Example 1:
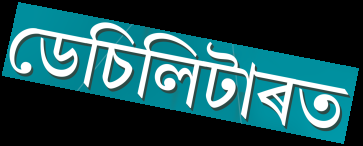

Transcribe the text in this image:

ডেচিলিটাৰত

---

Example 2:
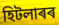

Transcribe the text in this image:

হিটলাৰৰ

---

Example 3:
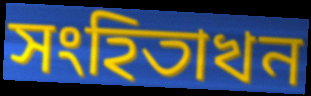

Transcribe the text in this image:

সংহিতাখন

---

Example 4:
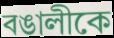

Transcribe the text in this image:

বঙালীকে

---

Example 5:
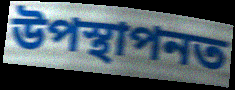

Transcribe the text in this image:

উপস্থাপনত